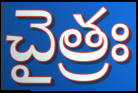
చైత్రః